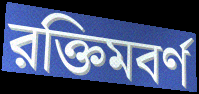
রক্তিমবর্ণ